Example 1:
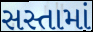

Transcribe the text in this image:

સસ્તામાં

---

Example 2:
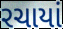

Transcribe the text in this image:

રચાયાં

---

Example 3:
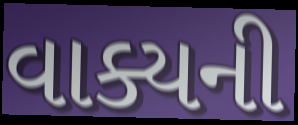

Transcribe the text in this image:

વાક્યની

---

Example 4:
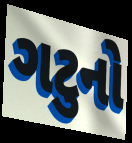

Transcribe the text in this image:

ગટુનો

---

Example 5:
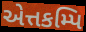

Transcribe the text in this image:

એત્તકમ્પિ